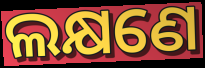
ଲକ୍ଷଣେ